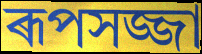
ৰূপসজ্জা